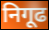
निगूढ